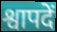
श्वापदें